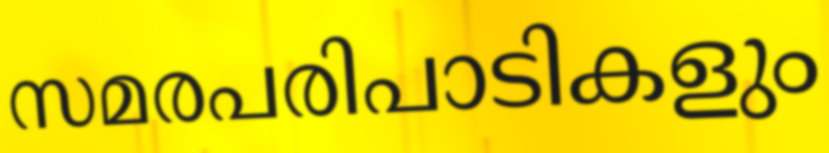
സമരപരിപാടികളും